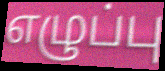
எழுப்பு